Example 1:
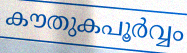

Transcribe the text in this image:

കൗതുകപൂർവ്വം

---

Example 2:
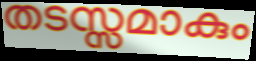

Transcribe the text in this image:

തടസ്സമാകും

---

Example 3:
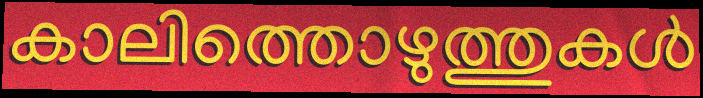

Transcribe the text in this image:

കാലിത്തൊഴുത്തുകൾ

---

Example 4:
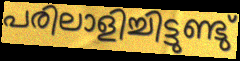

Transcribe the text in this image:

പരിലാളിച്ചിട്ടുണ്ടു്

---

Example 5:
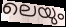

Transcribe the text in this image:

ലെയും